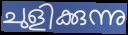
ചുളിക്കുന്നു